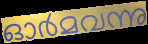
ഓർമവന്നു